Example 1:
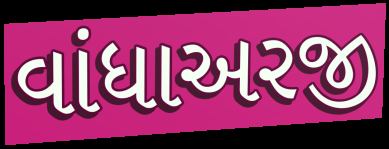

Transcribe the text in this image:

વાંધાઅરજી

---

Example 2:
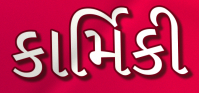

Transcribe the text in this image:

કાર્મિકી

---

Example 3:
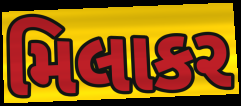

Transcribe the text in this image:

મિલાકર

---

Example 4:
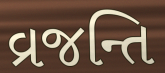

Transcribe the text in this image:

વ્રજન્તિ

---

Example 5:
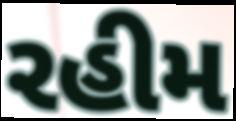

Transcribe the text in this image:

રહીમ